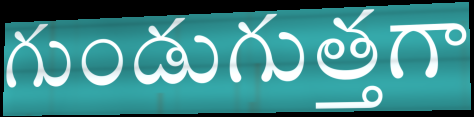
గుండుగుత్తగా